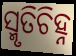
ସ୍ମୃତିଚିହ୍ନ